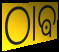
ଠାଵ